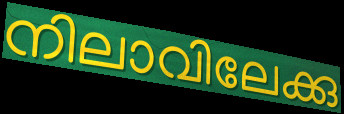
നിലാവിലേക്കു